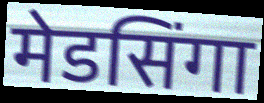
मेडसिंगा